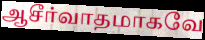
ஆசீர்வாதமாகவே